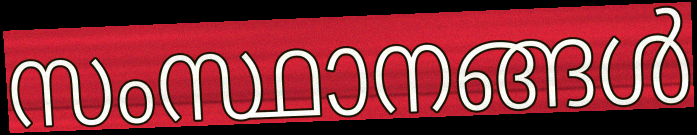
സംസ്ഥാനങ്ങൾ